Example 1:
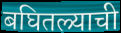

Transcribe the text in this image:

बघितल्याची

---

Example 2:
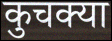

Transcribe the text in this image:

कुचक्या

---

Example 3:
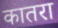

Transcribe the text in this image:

कातरा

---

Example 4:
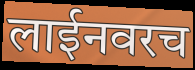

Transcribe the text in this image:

लाईनवरच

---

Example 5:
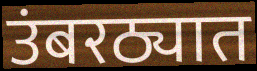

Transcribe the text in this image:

उंबरठ्यात